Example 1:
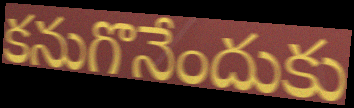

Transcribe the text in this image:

కనుగొనేందుకు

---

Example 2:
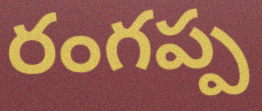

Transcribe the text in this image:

రంగప్ప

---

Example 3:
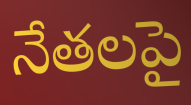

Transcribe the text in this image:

నేతలపై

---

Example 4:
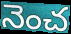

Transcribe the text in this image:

నెంచ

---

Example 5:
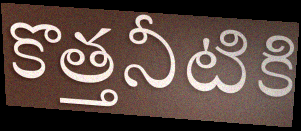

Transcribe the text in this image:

కొత్తనీటికి